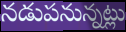
నడుపనున్నట్లు